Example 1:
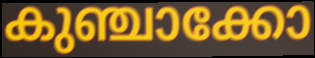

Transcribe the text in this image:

കുഞ്ചാക്കോ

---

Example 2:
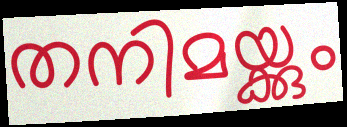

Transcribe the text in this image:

തനിമയ്ക്കും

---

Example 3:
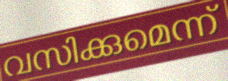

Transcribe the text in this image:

വസിക്കുമെന്ന്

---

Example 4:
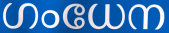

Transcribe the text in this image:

ഗംധേന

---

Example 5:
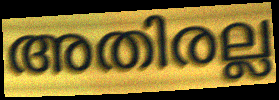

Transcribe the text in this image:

അതിരല്ല